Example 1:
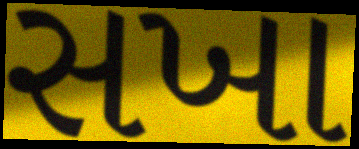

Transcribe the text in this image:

સખા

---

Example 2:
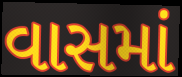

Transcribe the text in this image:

વાસમાં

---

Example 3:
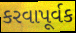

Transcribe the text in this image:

કરવાપૂર્વક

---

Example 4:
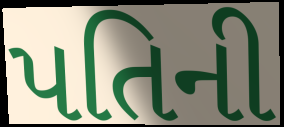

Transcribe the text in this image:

પતિની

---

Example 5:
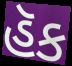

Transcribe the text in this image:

હૅક